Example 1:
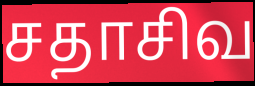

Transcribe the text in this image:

சதாசிவ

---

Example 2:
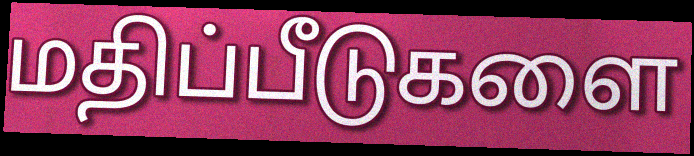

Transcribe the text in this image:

மதிப்பீடுகளை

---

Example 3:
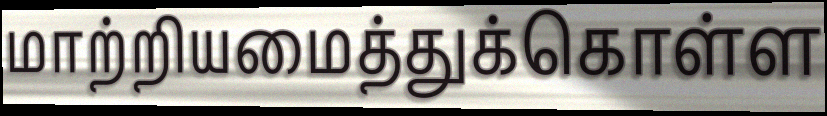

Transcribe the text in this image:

மாற்றியமைத்துக்கொள்ள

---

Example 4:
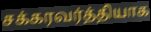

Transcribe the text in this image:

சக்கரவர்த்தியாக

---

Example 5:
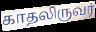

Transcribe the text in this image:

காதலிருவர்